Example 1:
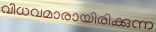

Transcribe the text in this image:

വിധവമാരായിരിക്കുന്ന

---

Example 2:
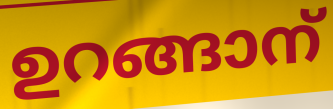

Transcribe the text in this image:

ഉറങ്ങാന്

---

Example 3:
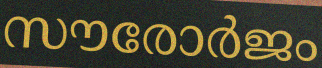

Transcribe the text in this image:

സൗരോർജം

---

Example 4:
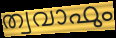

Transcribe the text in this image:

ത്വവാഫും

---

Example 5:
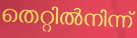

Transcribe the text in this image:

തെറ്റിൽനിന്ന്